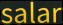
salar